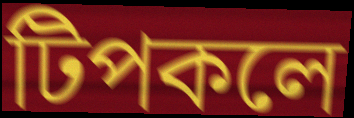
টিপকলে